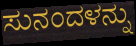
ಸುನಂದಳನ್ನು